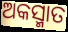
ଅକସ୍ମାତ